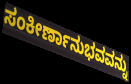
ಸಂಕೀರ್ಣಾನುಭವವನ್ನು